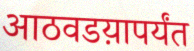
आठवडय़ापर्यंत